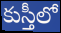
కుస్తీలో